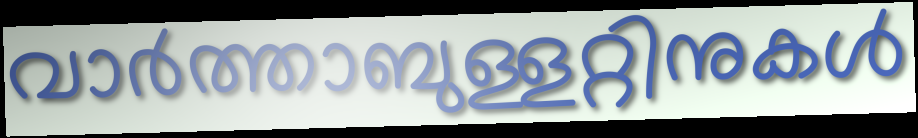
വാർത്താബുള്ളറ്റിനുകൾ